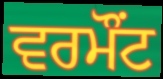
ਵਰਮੌਂਟ